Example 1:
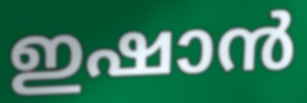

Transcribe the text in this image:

ഇഷാൻ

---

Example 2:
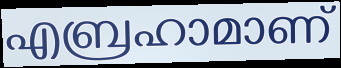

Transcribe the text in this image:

എബ്രഹാമാണ്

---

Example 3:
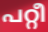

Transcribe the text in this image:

പറ്റീ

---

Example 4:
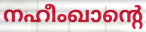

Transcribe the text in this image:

നഹീംഖാന്റെ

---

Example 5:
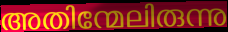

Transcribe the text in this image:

അതിന്മേലിരുന്നു